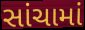
સાંચામાં